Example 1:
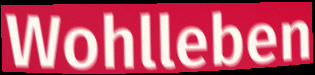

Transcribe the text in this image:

Wohlleben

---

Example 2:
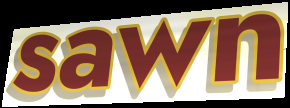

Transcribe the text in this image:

sawn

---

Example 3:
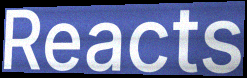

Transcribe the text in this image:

Reacts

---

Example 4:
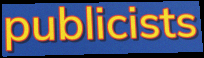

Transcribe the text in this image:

publicists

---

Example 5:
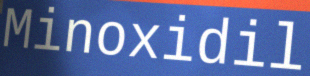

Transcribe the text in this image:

Minoxidil